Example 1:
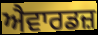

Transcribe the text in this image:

ਐਵਾਰਡਜ਼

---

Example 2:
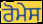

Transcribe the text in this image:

ਰੋਮੇਸ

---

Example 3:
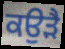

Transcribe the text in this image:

ਕਉੜੈ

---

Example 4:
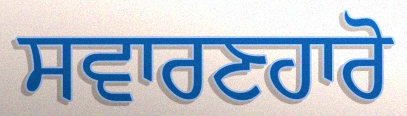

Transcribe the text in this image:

ਸਵਾਰਣਹਾਰੋ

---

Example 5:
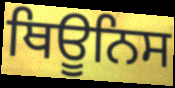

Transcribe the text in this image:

ਥਿਊਨਿਸ